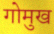
गोमुख